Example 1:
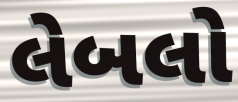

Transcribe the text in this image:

લેબલો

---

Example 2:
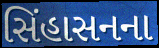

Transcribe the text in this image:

સિંહાસનના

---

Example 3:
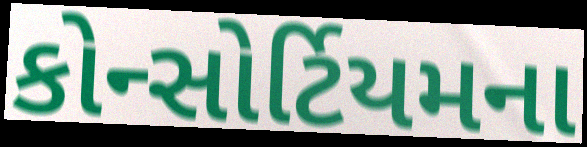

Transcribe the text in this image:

કોન્સોર્ટિયમના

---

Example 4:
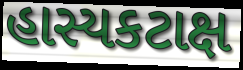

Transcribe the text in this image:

હાસ્યકટાક્ષ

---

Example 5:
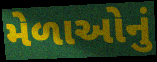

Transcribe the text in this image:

મેળાઓનું